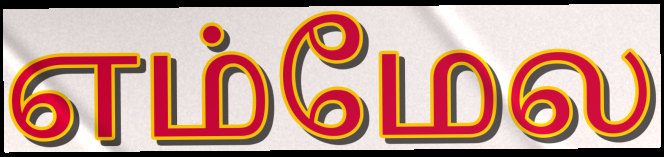
எம்மேல